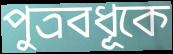
পুত্রবধূকে